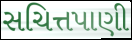
સચિત્તપાણી